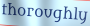
thoroughly